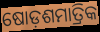
ଷୋଡ଼ଶମାତ୍ରିକ